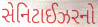
સેનિટાઈઝરનો